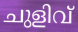
ചുളിവ്